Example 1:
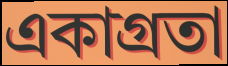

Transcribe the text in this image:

একাগ্রতা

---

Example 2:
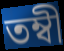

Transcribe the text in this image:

তম্বী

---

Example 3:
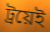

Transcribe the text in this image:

ট্রয়েই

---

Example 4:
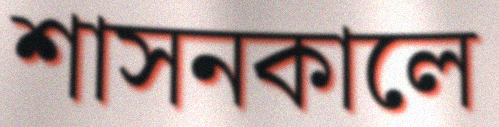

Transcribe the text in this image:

শাসনকালে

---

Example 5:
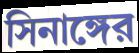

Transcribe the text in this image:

সিনাঙ্গের